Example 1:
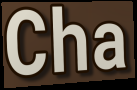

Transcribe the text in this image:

Cha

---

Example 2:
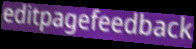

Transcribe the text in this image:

editpagefeedback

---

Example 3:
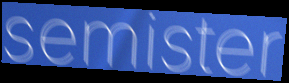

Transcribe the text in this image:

semister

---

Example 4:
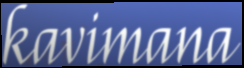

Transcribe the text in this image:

kavimana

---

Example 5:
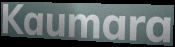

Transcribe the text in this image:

Kaumara